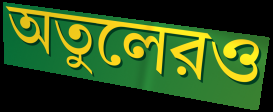
অতুলেরও